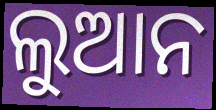
ଲୁଆନ